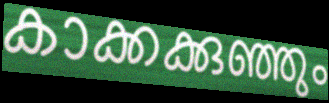
കാക്കക്കുഞ്ഞും